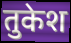
तुकेश